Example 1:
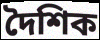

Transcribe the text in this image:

দৈশিক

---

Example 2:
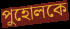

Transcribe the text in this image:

পুহোলকে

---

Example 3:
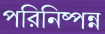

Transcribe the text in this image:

পরিনিষ্পন্ন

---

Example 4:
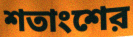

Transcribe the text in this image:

শতাংশের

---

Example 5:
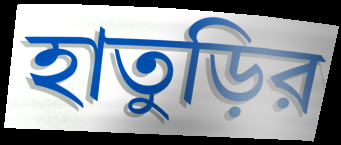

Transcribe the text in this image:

হাতুড়ির